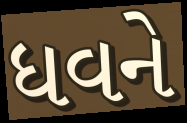
ધવને